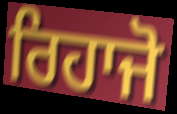
ਰਿਹਾਜੋ